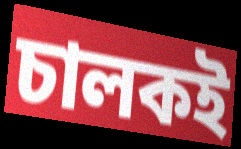
চালকই